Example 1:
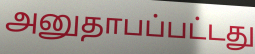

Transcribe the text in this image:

அனுதாபப்பட்டது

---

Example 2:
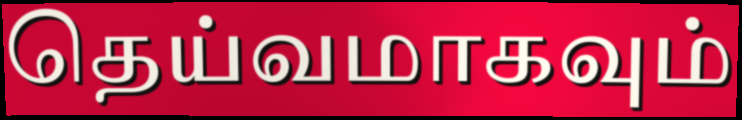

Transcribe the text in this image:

தெய்வமாகவும்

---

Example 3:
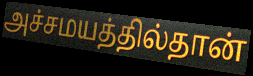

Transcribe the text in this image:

அச்சமயத்தில்தான்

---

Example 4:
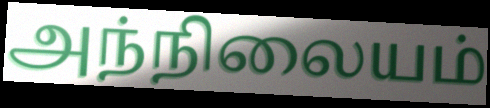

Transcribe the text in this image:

அந்நிலையம்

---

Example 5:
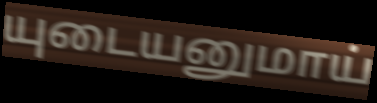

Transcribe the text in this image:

யுடையனுமாய்